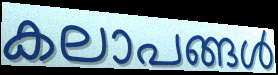
കലാപങ്ങൾ